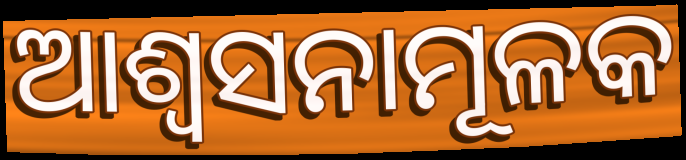
ଆଶ୍ୱସନାମୂଳକ